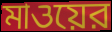
মাওয়ের